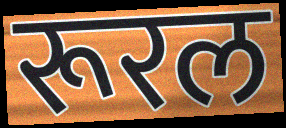
रूरल